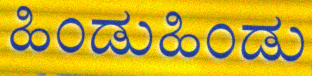
ಹಿಂಡುಹಿಂಡು